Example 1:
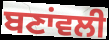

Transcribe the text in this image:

ਬਣਾਂਵਲੀ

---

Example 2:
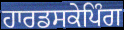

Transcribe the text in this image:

ਹਾਰਡਸਕੇਪਿੰਗ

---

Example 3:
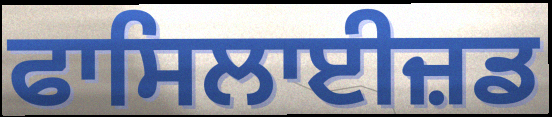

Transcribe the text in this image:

ਫਾਸਿਲਾਈਜ਼ਡ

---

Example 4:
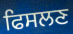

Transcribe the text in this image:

ਫਿਸਲਣ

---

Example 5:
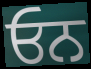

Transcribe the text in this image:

ਓਨ